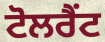
ਟੋਲਰੈਂਟ